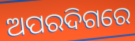
ଅପରଦିଗରେ